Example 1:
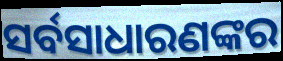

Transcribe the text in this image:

ସର୍ବସାଧାରଣଙ୍କର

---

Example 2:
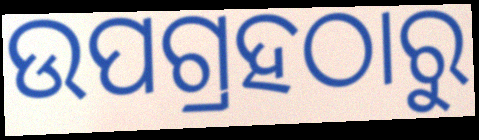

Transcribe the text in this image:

ଉପଗ୍ରହଠାରୁ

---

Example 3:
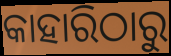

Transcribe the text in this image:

କାହାରିଠାରୁ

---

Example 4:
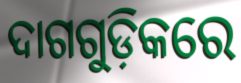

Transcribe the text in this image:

ଦାଗଗୁଡ଼ିକରେ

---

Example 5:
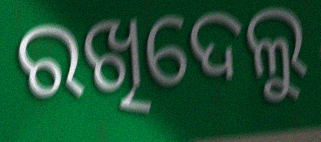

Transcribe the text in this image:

ରଖିଦେଲୁ